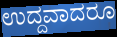
ಉದ್ದವಾದರೂ